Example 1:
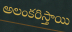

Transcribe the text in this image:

అలంకరిస్తాయి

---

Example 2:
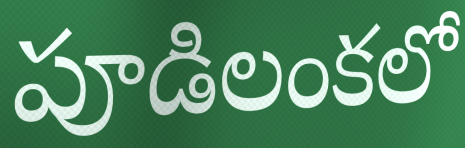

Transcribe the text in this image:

పూడిలంకలో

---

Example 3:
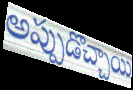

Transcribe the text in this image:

అప్పుడొచ్చాయి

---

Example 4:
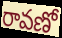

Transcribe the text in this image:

రావణో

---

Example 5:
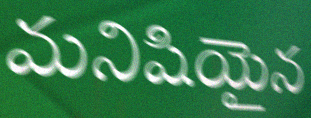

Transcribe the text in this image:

మనిషియైన